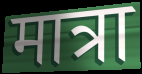
मात्रा